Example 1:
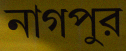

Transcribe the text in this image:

নাগপুর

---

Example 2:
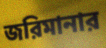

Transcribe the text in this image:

জরিমানার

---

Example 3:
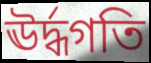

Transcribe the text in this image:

ঊর্দ্ধগতি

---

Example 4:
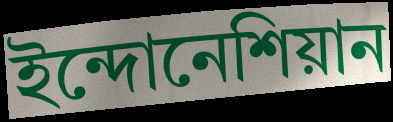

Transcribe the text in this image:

ইন্দোনেশিয়ান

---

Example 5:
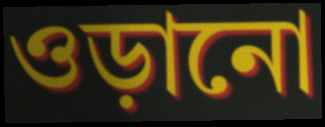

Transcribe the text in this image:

ওড়ানো